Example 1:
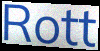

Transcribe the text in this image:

Rott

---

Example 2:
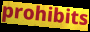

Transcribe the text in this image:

prohibits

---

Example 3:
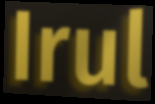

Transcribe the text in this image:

Irul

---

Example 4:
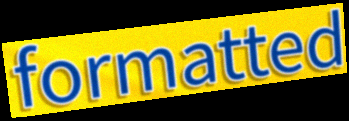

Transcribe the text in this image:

formatted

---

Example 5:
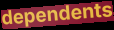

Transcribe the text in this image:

dependents